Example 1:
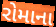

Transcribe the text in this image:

રોમાના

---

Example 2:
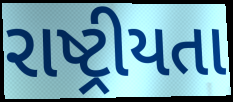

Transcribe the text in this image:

રાષ્ટ્રીયતા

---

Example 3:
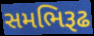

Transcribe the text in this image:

સમભિરૂઢ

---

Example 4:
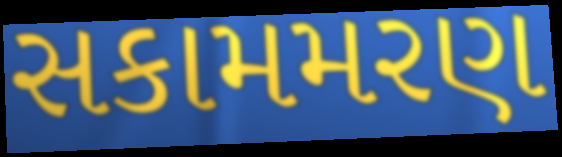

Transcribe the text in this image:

સકામમરણ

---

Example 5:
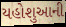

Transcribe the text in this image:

યહોશુઆની